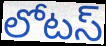
లోటస్